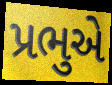
પ્રભુએ